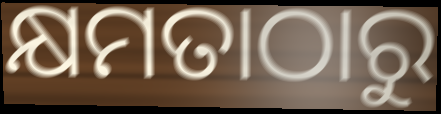
କ୍ଷମତାଠାରୁ